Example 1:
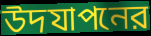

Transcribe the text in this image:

উদযাপনের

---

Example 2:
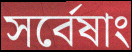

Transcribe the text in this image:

সর্বেষাং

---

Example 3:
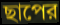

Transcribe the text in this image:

ছাপের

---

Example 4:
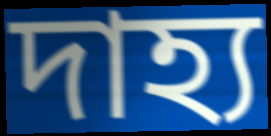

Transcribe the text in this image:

দাহ্য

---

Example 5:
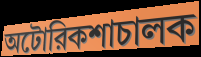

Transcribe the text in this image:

অটোরিকশাচালক